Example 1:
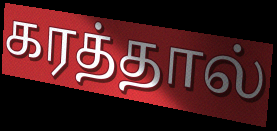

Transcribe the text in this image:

கரத்தால்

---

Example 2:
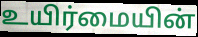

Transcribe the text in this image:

உயிர்மையின்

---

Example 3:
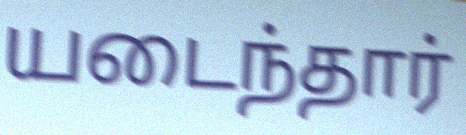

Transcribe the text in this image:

யடைந்தார்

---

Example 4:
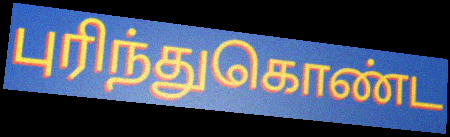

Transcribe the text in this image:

புரிந்துகொண்ட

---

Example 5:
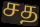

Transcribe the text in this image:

சத